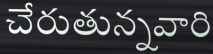
చేరుతున్నవారి